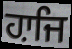
ਹ਼ਾਜਿ